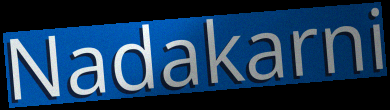
Nadakarni